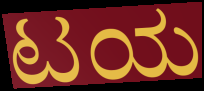
ಟಯ